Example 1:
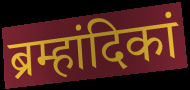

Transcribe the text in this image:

ब्रम्हांदिकां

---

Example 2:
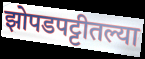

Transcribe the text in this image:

झोपडपट्टीतल्या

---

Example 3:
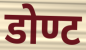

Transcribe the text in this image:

डोण्ट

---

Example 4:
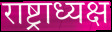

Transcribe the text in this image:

राष्ट्राध्यक्ष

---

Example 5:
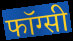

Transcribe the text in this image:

फॉग्सी